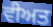
ਵੀਅਤ